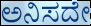
ಅನಿಸದೇ